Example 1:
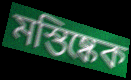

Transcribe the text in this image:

মস্তিষ্কেক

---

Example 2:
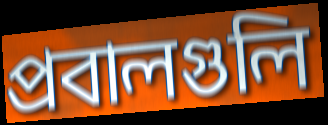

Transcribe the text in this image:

প্রবালগুলি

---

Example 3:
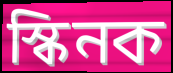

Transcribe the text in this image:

স্কিনক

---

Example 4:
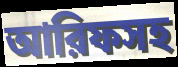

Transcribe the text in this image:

আরিফসহ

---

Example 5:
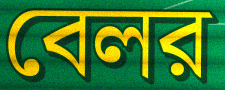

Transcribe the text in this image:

বেলর